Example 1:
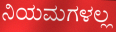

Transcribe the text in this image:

ನಿಯಮಗಳಲ್ಲ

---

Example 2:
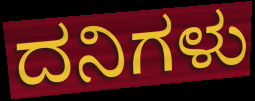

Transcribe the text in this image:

ದನಿಗಳು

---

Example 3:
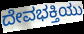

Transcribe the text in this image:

ದೇವಭಕ್ತಿಯು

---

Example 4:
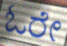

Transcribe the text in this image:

ಓರೇ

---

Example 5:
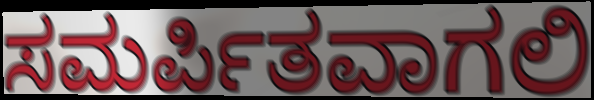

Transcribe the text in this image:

ಸಮರ್ಪಿತವಾಗಲಿ